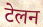
टेलन